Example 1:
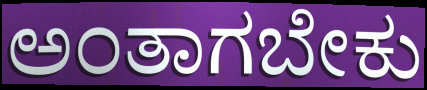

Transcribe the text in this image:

ಅಂತಾಗಬೇಕು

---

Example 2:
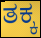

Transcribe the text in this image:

ತಕ್ಕ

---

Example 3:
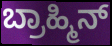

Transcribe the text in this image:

ಬ್ರಾಹ್ಮಿನ್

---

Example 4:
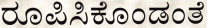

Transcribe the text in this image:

ರೂಪಿಸಿಕೊಂಡಂತೆ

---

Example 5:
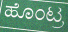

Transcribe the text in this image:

ಹೊಂಟ್ರ